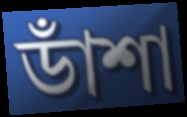
ডাঁশা